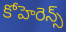
కోహెరెన్స్